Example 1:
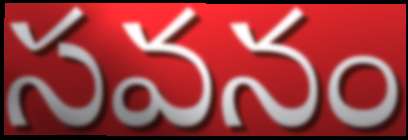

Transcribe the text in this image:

సవనం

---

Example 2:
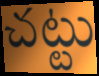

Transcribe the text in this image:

చట్టు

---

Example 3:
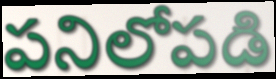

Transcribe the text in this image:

పనిలోపడి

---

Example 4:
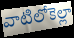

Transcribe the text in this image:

వాటిలోకెల్లా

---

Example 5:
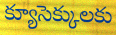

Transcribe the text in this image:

క్యూసెక్కులకు